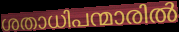
ശതാധിപന്മാരിൽ